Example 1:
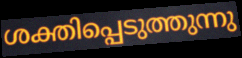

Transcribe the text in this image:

ശക്തിപ്പെടുത്തുന്നു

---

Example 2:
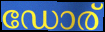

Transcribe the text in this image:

ഡോര്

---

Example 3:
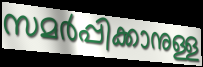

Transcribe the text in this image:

സമർപ്പിക്കാനുള്ള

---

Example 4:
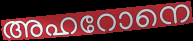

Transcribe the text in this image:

അഹറോനെ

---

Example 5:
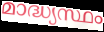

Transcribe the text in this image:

മാദ്ധ്യസ്ഥം